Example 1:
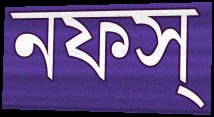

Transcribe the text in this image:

নফস্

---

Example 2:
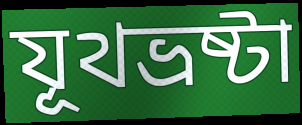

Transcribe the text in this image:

যূথভ্রষ্টা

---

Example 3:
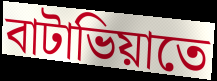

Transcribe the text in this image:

বাটাভিয়াতে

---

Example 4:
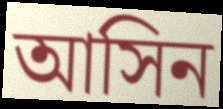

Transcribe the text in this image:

আসিন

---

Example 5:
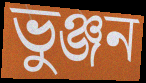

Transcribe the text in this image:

ভুঞ্জন